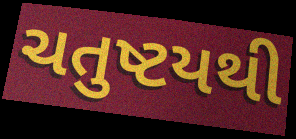
ચતુષ્ટયથી